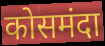
कोसमंदा